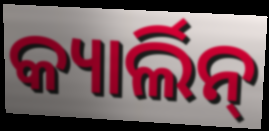
କ୍ୟାର୍ଲିନ୍